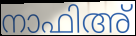
നാഫിഅ്